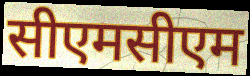
सीएमसीएम